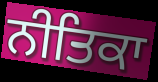
ਨੀਤਿਕਾ